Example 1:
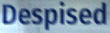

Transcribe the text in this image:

Despised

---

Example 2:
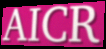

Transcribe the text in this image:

AICR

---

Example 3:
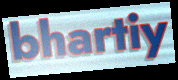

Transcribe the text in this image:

bhartiy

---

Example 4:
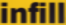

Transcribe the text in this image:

infill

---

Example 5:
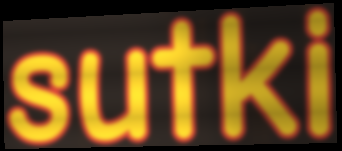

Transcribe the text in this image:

sutki